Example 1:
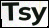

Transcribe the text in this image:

Tsy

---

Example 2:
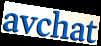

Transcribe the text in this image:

avchat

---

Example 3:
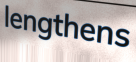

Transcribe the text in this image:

lengthens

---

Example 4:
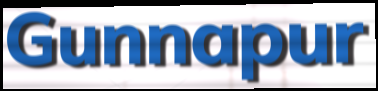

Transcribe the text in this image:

Gunnapur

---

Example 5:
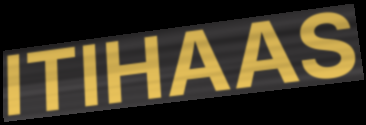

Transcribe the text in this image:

ITIHAAS